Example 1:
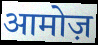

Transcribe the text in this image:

आमोज़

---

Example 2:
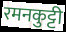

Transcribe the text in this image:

रमनकुट्टी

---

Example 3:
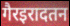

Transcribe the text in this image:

गैरइरादतन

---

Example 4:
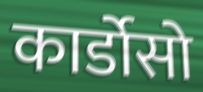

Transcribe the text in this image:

कार्डोसो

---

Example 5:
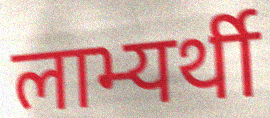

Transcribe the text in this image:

लाभ्यर्थी